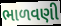
ભાળવણી